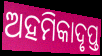
ଅହମିକାଦୃପ୍ତ